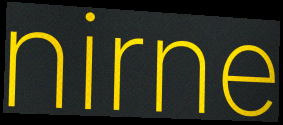
nirne